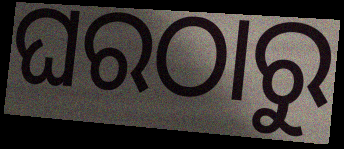
ଘରଠାରୁ